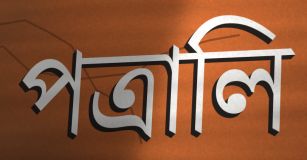
পত্রালি